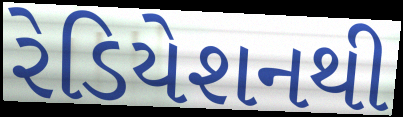
રેડિયેશનથી